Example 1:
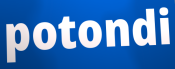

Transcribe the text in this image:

potondi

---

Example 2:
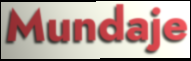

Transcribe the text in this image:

Mundaje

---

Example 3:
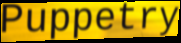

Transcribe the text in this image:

Puppetry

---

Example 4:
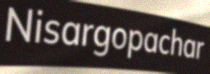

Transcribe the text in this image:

Nisargopachar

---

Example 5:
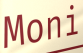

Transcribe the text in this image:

Moni